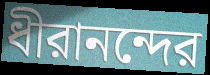
ধীরানন্দের